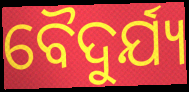
ବୈଦୁର୍ଯ୍ୟ